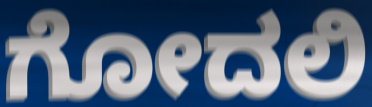
ಗೋದಲಿ